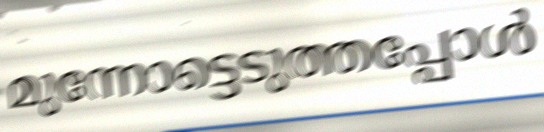
മുന്നോട്ടെടുത്തപ്പോൾ